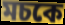
মচকে